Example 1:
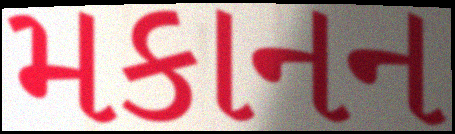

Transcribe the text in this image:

મકાનન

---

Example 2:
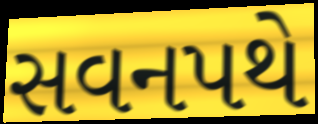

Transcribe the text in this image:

સવનપથે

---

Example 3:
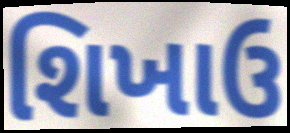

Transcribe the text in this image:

શિખાઉ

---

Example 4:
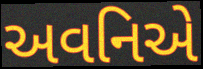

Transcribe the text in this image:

અવનિએ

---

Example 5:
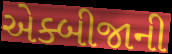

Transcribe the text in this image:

એક્બીજાની